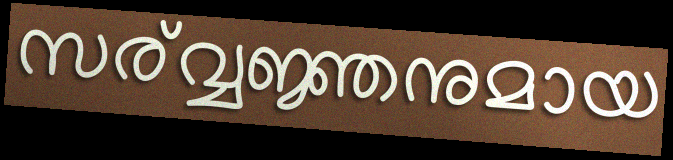
സര്വ്വജ്ഞനുമായ